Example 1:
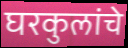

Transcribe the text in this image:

घरकुलांचे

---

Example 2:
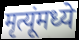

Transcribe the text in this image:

मृत्यूंमध्ये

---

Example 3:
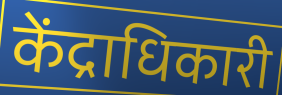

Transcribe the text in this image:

केंद्राधिकारी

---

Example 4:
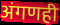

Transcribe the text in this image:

अंगणही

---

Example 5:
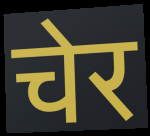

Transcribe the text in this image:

चेर